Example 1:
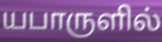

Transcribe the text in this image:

யபாருளில்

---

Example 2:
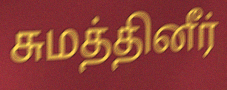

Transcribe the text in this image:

சுமத்தினீர்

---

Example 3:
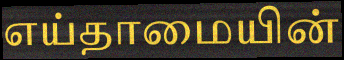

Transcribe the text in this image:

எய்தாமையின்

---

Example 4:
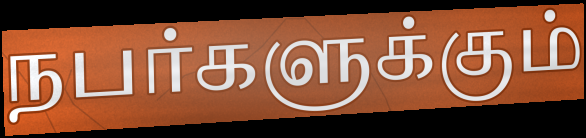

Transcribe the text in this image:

நபர்களுக்கும்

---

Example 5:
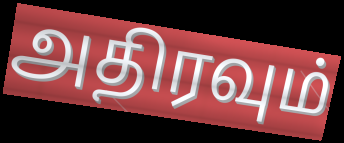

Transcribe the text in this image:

அதிரவும்